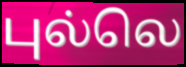
புல்லெ